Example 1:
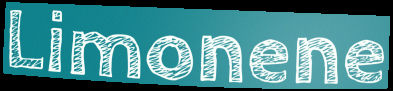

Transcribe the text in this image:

Limonene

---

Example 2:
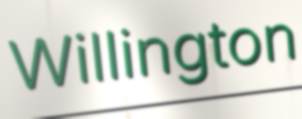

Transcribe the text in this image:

Willington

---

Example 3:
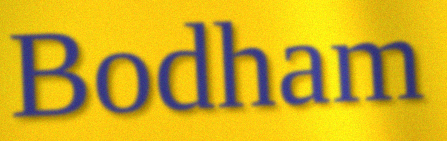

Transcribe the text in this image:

Bodham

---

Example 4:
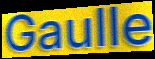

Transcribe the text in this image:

Gaulle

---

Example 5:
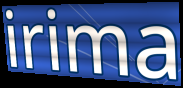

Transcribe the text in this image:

irima